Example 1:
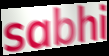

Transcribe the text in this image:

sabhi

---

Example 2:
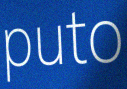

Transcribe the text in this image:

puto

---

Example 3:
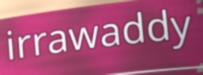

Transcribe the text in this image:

irrawaddy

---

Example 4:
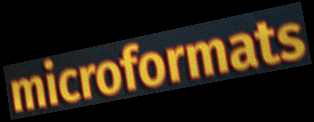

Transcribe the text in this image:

microformats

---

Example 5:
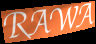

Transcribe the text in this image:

RAWA